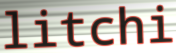
litchi